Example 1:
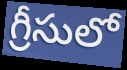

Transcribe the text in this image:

గ్రీసులో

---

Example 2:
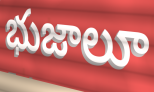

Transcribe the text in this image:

భుజాలూ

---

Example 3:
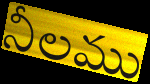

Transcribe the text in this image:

నీలము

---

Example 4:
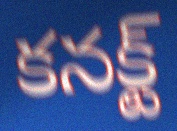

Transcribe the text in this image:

కనక్ట్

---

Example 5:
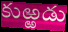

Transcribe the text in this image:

కుఱ్ఱడు